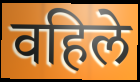
वहिले